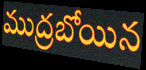
ముద్రబోయిన